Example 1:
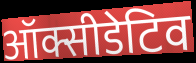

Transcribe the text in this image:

ऑक्सीडेटिव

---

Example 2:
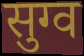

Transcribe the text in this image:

सुग्व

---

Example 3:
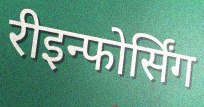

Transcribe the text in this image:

रीइन्फोर्सिंग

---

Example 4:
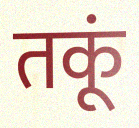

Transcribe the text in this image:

तकूं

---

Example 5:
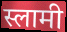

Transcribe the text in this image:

स्लामी